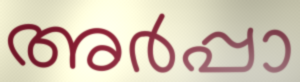
അർപ്പാ